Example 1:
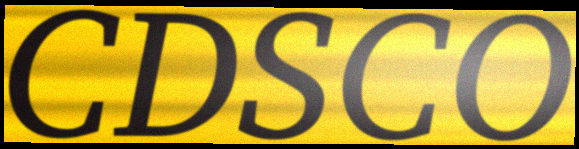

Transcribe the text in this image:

CDSCO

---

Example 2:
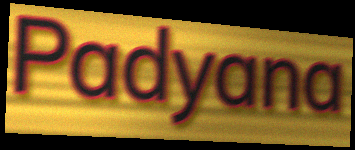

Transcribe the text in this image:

Padyana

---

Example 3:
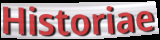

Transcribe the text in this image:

Historiae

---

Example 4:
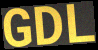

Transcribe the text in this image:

GDL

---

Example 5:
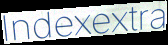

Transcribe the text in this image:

Indexextra